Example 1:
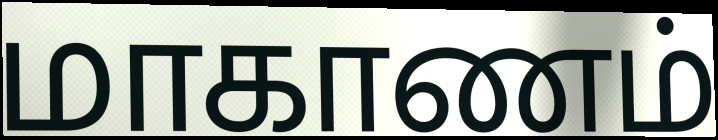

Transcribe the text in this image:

மாகாணம்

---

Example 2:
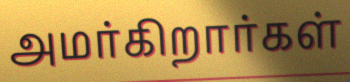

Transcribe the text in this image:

அமர்கிறார்கள்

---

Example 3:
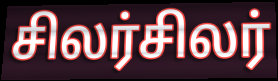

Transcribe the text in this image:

சிலர்சிலர்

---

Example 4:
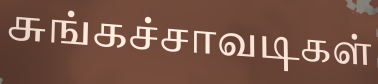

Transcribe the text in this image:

சுங்கச்சாவடிகள்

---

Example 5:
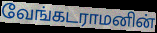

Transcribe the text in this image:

வேங்கடராமனின்